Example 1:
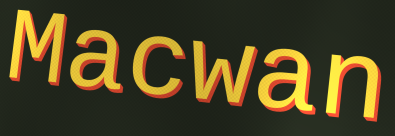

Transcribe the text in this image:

Macwan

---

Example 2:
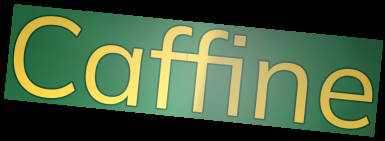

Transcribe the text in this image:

Caffine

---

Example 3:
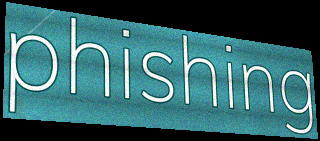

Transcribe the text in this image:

phishing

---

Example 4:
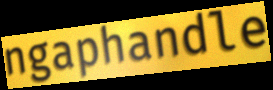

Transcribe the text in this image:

ngaphandle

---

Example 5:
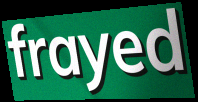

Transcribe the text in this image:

frayed